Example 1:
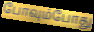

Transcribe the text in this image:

போவும்போது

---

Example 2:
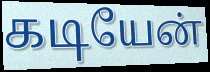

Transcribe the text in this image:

கடியேன்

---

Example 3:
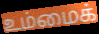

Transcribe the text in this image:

உம்மைக்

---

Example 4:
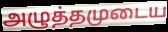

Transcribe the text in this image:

அழுத்தமுடைய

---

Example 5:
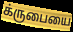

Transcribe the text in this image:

க்ருபையை